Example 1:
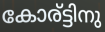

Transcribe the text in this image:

കോര്ട്ടിനു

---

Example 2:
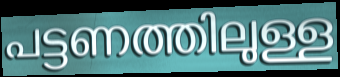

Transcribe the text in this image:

പട്ടണത്തിലുള്ള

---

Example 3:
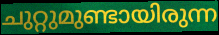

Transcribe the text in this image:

ചുറ്റുമുണ്ടായിരുന്ന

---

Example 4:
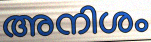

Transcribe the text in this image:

അനിശം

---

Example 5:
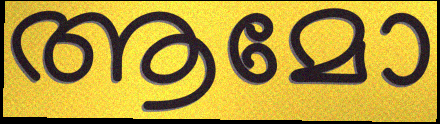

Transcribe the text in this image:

ആമോ